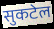
सुकटेल